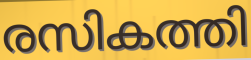
രസികത്തി